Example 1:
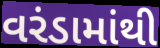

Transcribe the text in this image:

વરંડામાંથી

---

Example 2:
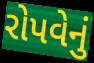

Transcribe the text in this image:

રોપવેનું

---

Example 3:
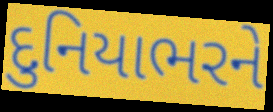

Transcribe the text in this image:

દુનિયાભરને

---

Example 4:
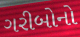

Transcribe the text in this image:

ગરીબોનો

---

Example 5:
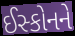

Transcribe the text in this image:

ઈસ્કોનને